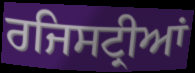
ਰਜਿਸਟ੍ਰੀਆਂ